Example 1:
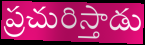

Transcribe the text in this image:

ప్రచురిస్తాడు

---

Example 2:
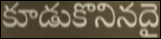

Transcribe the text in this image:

కూడుకొనినదై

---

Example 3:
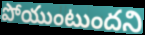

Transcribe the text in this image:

పోయుంటుందని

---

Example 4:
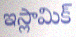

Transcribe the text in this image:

ఇస్లామిక్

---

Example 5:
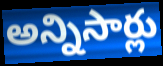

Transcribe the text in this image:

అన్నిసార్లు